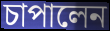
চাপালেন